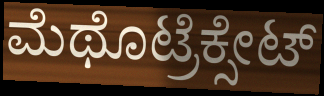
ಮೆಥೊಟ್ರೆಕ್ಸೇಟ್